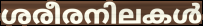
ശരീരനിലകൾ